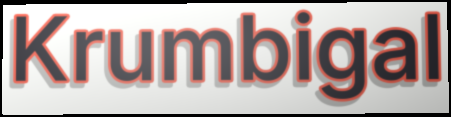
Krumbigal